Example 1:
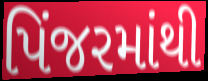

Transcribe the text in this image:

પિંજરમાંથી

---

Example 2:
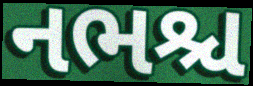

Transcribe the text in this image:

નભશ્ચ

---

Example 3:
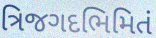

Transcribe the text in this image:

ત્રિજગદભિમિતં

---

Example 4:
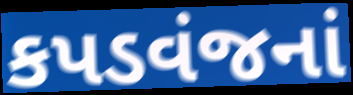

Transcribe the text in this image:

કપડવંજનાં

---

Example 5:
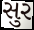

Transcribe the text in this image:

સુર